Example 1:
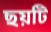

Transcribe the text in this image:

ছয়টি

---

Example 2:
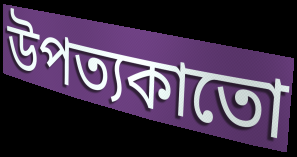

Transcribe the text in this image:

উপত্যকাতো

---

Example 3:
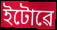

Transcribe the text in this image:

ইটোৱে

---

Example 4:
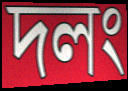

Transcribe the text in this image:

দলং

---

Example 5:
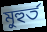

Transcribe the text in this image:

মুহুৰ্ত